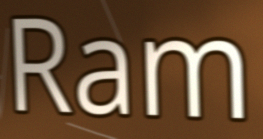
Ram